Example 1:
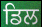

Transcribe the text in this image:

ਡਿਲ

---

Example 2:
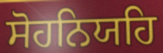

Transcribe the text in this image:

ਸੋਹਨਿਯਹਿ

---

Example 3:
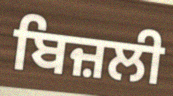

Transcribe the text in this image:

ਬਿਜ਼ਲੀ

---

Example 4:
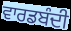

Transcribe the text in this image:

ਵਾਰਡਬੰਦੀ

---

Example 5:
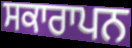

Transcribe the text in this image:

ਸਕਾਰਾਪਨ